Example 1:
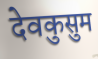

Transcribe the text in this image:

देवकुसुम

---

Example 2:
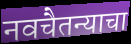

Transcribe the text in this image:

नवचैतन्याचा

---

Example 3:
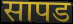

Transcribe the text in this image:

सापड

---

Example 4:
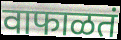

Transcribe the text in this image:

वाफाळतं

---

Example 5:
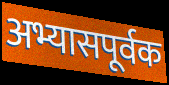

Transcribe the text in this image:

अभ्यासपूर्वक